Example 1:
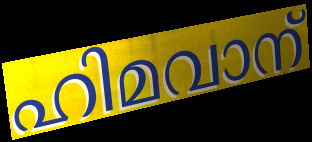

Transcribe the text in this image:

ഹിമവാന്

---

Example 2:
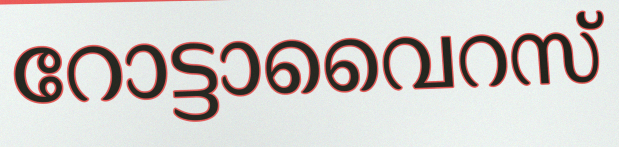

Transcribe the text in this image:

റോട്ടാവൈറസ്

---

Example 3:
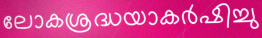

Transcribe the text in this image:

ലോകശ്രദ്ധയാകർഷിച്ചു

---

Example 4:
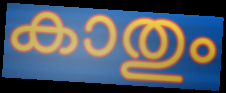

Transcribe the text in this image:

കാതും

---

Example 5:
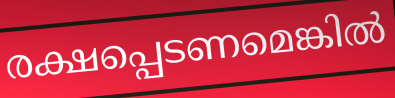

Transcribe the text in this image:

രക്ഷപ്പെടണമെങ്കിൽ